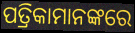
ପତ୍ରିକାମାନଙ୍କରେ